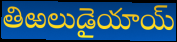
తిఱలుడైయాయ్